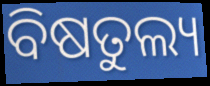
ବିଷତୁଲ୍ୟ